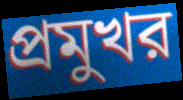
প্রমুখর